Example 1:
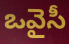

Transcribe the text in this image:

ఒవైసీ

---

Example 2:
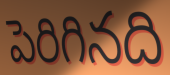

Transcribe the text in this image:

పెరిగినది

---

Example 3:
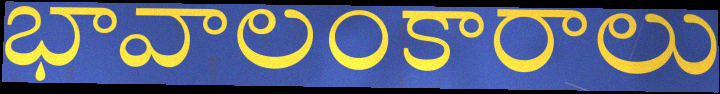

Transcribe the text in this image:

భావాలంకారాలు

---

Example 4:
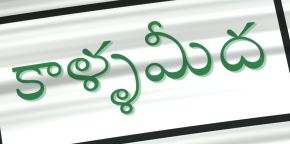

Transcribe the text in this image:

కాళ్ళమీద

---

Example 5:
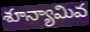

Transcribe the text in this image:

శూన్యామివ